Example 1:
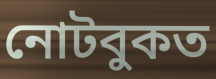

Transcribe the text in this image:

নোটবুকত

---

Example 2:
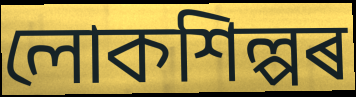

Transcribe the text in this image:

লোকশিল্পৰ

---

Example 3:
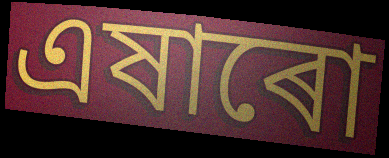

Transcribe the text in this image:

এষাৰো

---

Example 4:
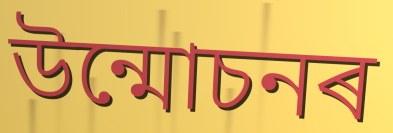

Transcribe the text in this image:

উন্মোচনৰ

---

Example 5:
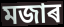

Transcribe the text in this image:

মজাৰ